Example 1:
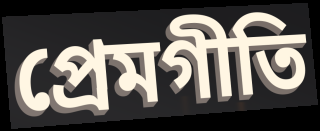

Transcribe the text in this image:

প্রেমগীতি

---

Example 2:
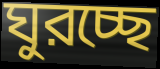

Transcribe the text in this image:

ঘুরচ্ছে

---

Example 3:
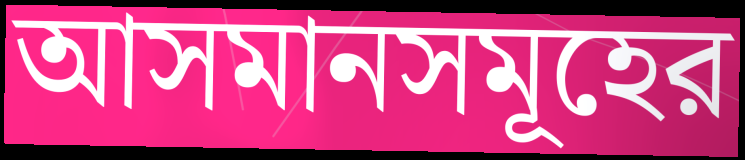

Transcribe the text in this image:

আসমানসমূহের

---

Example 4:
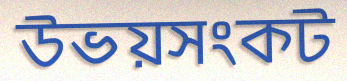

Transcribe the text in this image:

উভয়সংকট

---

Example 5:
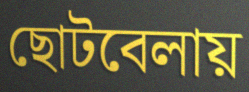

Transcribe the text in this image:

ছোটবেলায়